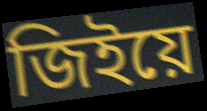
জিইয়ে